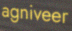
agniveer